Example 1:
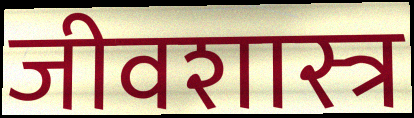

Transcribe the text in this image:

जीवशास्त्र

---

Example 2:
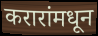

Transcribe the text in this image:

करारांमधून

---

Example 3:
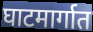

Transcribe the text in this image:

घाटमार्गात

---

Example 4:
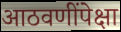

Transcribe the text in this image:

आठवणींपेक्षा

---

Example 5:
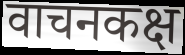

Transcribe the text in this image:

वाचनकक्ष